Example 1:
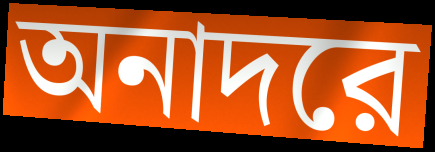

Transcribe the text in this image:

অনাদরে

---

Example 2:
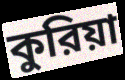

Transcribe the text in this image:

কুরিয়া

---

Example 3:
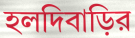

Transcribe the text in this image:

হলদিবাড়ির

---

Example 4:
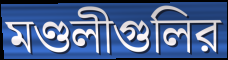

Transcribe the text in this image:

মণ্ডলীগুলির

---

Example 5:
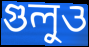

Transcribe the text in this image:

গুলুও